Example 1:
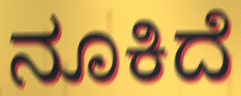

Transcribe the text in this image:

ನೂಕಿದೆ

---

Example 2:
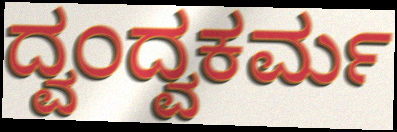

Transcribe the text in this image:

ದ್ವಂದ್ವಕರ್ಮ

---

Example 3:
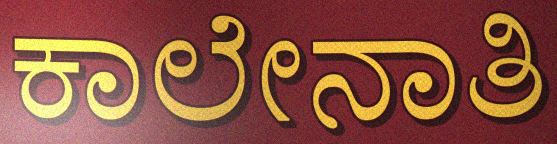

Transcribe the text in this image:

ಕಾಲೇನಾತಿ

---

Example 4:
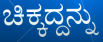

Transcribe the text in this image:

ಚಿಕ್ಕದ್ದನ್ನು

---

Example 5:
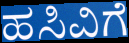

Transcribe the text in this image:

ಹಸಿವಿಗೆ